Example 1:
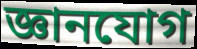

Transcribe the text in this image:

জ্ঞানযোগ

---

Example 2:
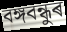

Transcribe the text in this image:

বঙ্গবন্ধুৰ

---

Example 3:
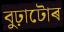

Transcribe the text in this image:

বুঢ়াটোৰ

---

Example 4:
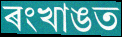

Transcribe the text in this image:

ৰংখাঙত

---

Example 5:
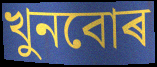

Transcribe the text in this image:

খুনবোৰ